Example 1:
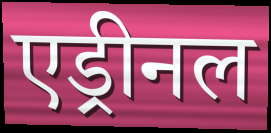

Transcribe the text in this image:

एड्रीनल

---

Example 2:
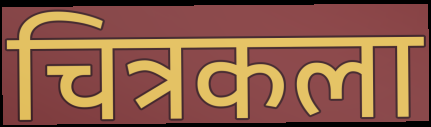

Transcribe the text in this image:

चित्रकला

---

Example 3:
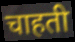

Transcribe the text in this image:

चाहती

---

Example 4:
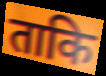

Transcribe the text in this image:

ताकि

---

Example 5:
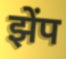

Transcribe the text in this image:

झेंप